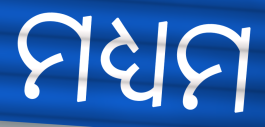
ମଧ୍ୟମ